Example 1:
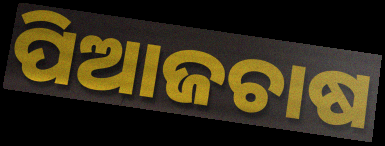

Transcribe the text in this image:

ପିଆଜଚାଷ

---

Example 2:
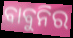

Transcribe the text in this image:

ବାବୁନିର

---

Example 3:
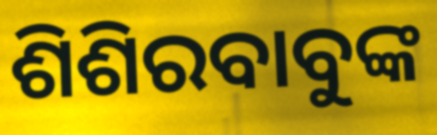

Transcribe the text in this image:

ଶିଶିରବାବୁଙ୍କ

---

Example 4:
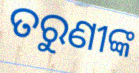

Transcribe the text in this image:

ତରୁଣୀଙ୍କ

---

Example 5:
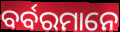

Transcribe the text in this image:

ବର୍ବରମାନେ